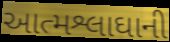
આત્મશ્લાઘાની